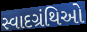
સ્વાદગ્રંથિઓ